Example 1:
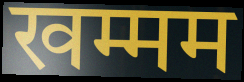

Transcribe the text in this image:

खम्मम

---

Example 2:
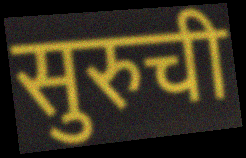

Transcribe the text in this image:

सुरुची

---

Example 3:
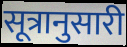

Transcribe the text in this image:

सूत्रानुसारी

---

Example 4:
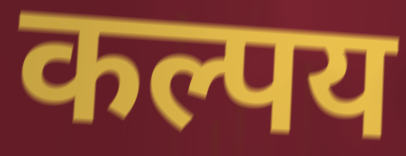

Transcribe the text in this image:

कल्पय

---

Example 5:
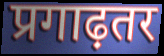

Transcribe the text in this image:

प्रगाढ़तर